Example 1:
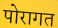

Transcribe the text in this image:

पोरागत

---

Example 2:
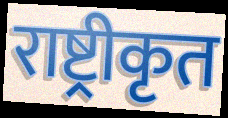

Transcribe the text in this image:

राष्ट्रीकृत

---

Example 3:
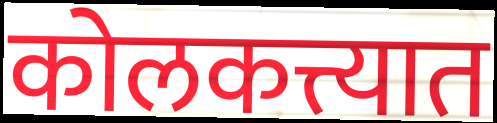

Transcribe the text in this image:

कोलकत्त्यात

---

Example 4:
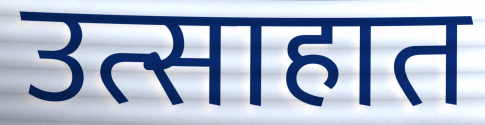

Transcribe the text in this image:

उत्साहात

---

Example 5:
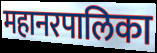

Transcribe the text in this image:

महानरपालिका